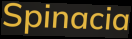
Spinacia